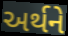
અર્થને